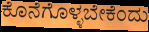
ಕೊನೆಗೊಳ್ಳಬೇಕೆಂದು